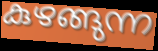
കുഴങ്ങുന്ന